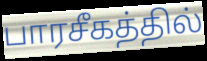
பாரசீகத்தில்